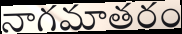
నాగమాతరం